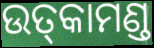
ଉତ୍‌କାମଣ୍ଡ